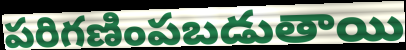
పరిగణింపబడుతాయి